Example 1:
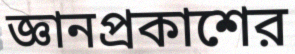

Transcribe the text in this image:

জ্ঞানপ্রকাশের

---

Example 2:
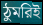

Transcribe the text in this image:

ঠুমরিই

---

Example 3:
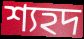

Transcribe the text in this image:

শ্যহদ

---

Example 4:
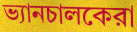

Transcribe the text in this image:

ভ্যানচালকেরা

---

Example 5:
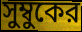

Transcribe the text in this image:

সুম্বুকের